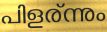
പിളര്ന്നും